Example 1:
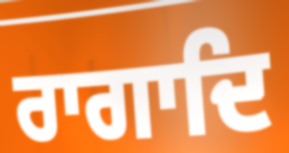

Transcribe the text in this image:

ਰਾਗਾਦਿ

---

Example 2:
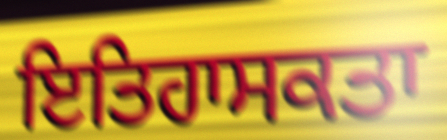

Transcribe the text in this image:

ਇਤਿਹਾਸਕਤਾ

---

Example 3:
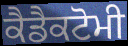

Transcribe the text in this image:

ਕੈਡੈਕਟੋਮੀ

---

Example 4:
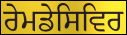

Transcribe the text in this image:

ਰੇਮਡੇਸਿਵਿਰ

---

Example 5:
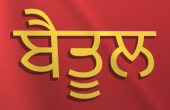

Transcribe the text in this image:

ਬੈਤੂਲ